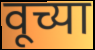
वूच्या